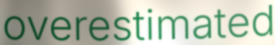
overestimated